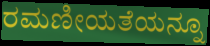
ರಮಣೀಯತೆಯನ್ನೂ